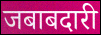
जबाबदारी